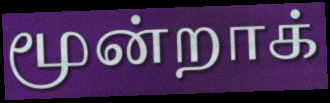
மூன்றாக்